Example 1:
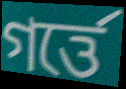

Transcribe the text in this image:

গর্ত্তে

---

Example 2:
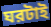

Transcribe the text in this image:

ঘরটাই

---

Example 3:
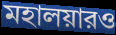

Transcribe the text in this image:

মহালয়ারও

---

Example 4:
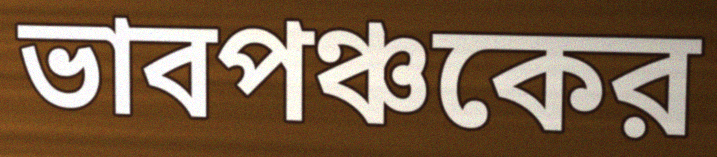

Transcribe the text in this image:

ভাবপঞ্চকের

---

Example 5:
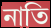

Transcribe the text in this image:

নাতি